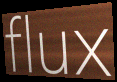
flux